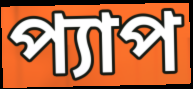
প্যাপ